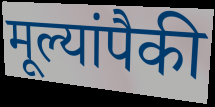
मूल्यांपैकी